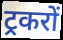
ट्रकरों